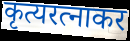
कृत्यरत्नाकर